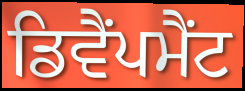
ਡਿਵੈਂਪਮੈਂਟ